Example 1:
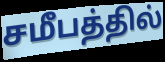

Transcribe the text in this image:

சமீபத்தில்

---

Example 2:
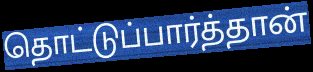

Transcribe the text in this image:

தொட்டுப்பார்த்தான்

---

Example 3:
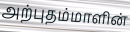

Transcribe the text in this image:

அற்புதம்மாளின்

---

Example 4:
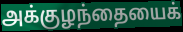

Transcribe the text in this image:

அக்குழந்தையைக்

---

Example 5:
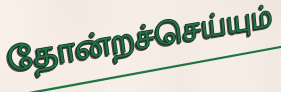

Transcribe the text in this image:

தோன்றச்செய்யும்